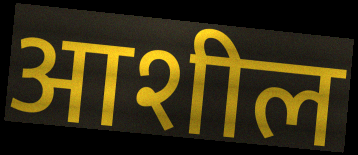
आशील